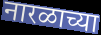
नारळाच्या